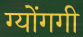
ग्योंगगी